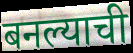
बनल्याची